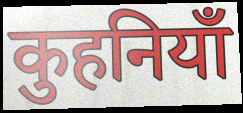
कुहनियाँ